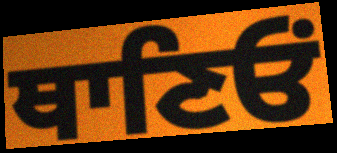
ਥਾਣਿਓਂ